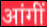
आंगीं